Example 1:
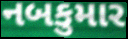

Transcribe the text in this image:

નબકુમાર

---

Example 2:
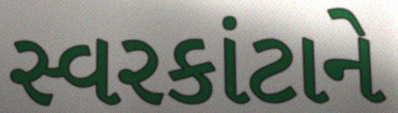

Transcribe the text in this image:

સ્વરકાંટાને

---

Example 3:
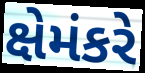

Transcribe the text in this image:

ક્ષેમંકરે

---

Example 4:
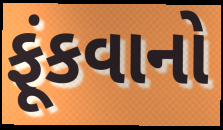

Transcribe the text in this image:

ફૂંકવાનો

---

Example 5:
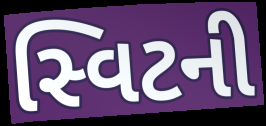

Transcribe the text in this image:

સ્વિટની